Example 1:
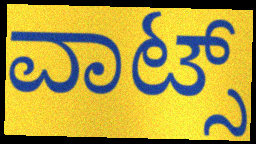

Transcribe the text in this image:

ವಾಟ್ಸ್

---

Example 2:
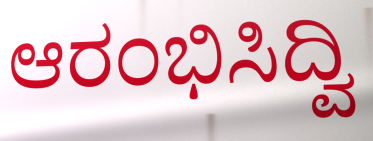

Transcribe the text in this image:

ಆರಂಭಿಸಿದ್ವಿ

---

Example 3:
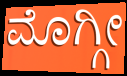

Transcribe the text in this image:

ಮೊಗ್ಗೀ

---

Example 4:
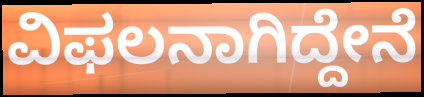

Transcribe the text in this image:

ವಿಫಲನಾಗಿದ್ದೇನೆ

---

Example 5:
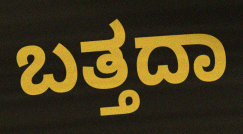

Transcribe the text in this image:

ಬತ್ತದಾ